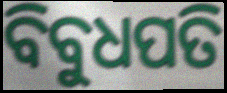
ବିବୁଧପତି